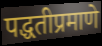
पद्धतीप्रमाणे